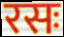
रसः